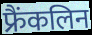
फ्रैंकलिन